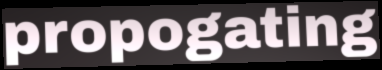
propogating